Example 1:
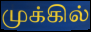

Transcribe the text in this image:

முக்கில்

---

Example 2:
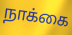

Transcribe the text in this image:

நாக்கை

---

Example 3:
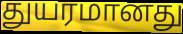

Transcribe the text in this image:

துயரமானது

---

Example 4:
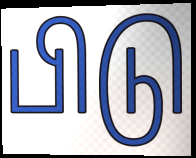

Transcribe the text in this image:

பிடு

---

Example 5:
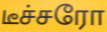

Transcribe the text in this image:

டீச்சரோ